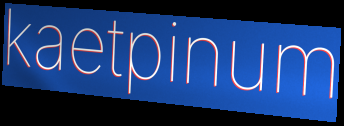
kaetpinum